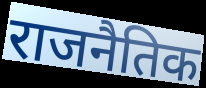
राजनैतिक